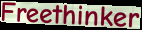
Freethinker